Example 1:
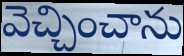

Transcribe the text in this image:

వెచ్చించాను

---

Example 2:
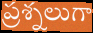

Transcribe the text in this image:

ప్రశ్నలుగా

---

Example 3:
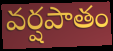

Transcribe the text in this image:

వర్షపాతం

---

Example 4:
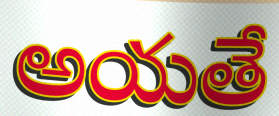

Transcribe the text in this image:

అయతే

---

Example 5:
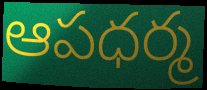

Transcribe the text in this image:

ఆపధర్మ